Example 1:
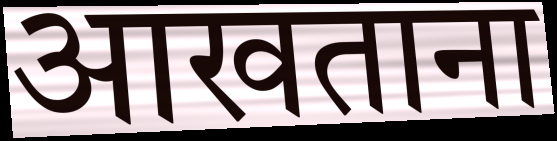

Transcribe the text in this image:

आखताना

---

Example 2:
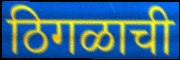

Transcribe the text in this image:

ठिगळाची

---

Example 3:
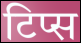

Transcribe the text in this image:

टिप्स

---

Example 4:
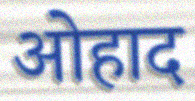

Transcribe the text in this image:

ओहाद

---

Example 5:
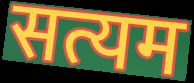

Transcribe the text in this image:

सत्यम